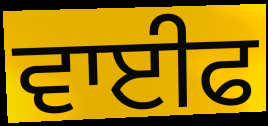
ਵਾਈਫ